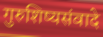
गुरुशिष्यसंवादे